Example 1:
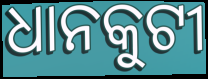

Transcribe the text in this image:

ଧାନକୁଟୀ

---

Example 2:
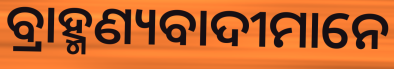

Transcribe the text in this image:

ବ୍ରାହ୍ମଣ୍ୟବାଦୀମାନେ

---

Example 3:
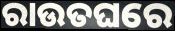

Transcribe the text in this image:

ରାଉତଘରେ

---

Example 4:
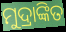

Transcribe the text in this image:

ମୁଦ୍ରାଙ୍କିତ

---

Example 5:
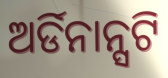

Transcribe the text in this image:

ଅର୍ଡିନାନ୍ସଟି